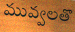
మువ్వలతొ